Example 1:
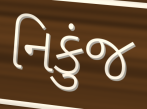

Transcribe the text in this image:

નિકુંજ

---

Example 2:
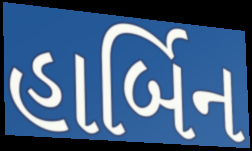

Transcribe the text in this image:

હાર્બિન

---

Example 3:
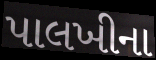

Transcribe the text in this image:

પાલખીના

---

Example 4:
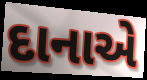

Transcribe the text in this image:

દાનાએ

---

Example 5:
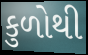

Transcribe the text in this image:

કુળોથી